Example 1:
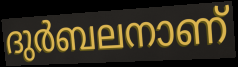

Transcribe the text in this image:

ദുർബലനാണ്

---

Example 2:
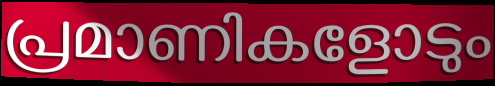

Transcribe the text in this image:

പ്രമാണികളോടും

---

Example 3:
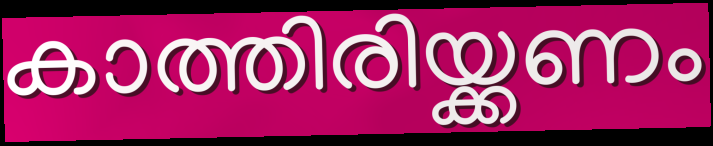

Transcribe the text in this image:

കാത്തിരിയ്ക്കണം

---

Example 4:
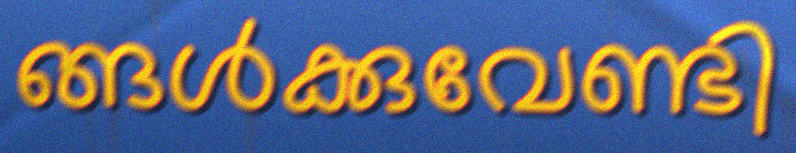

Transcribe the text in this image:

ങ്ങൾക്കുവേണ്ടി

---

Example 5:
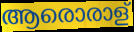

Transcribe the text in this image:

ആരൊരാള്